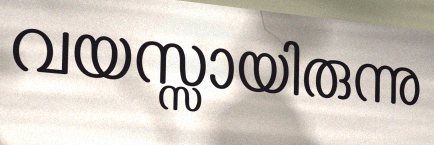
വയസ്സായിരുന്നു